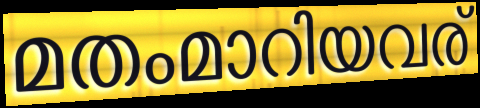
മതംമാറിയവര്